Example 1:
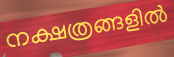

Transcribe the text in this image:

നക്ഷത്രങ്ങളിൽ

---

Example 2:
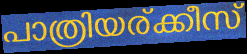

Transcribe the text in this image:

പാത്രിയര്ക്കീസ്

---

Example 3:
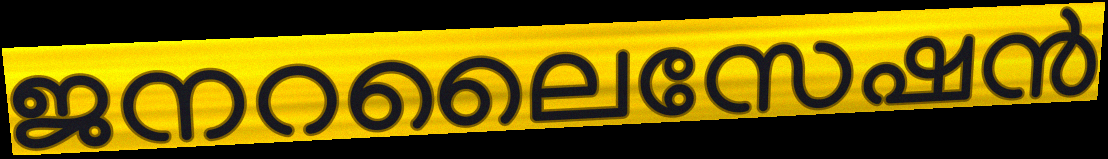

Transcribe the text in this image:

ജനറലൈസേഷൻ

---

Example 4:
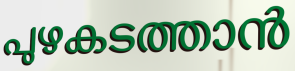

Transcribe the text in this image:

പുഴകടത്താൻ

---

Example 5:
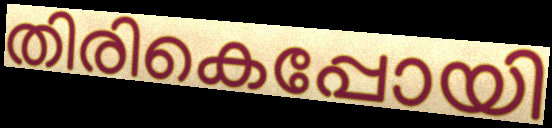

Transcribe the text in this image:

തിരികെപ്പോയി